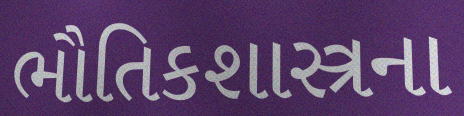
ભૌતિકશાસ્ત્રના